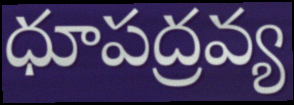
ధూపద్రవ్య